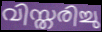
വിസ്തരിച്ചു